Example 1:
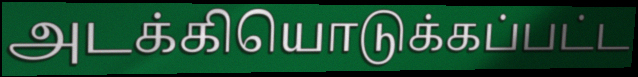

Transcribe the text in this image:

அடக்கியொடுக்கப்பட்ட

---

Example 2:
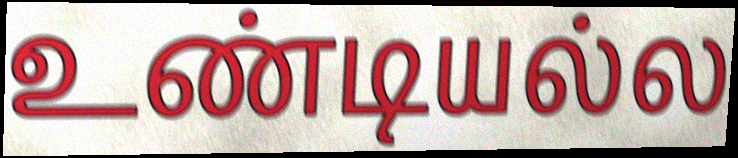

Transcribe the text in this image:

உண்டியல்ல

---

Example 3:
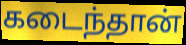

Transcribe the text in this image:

கடைந்தான்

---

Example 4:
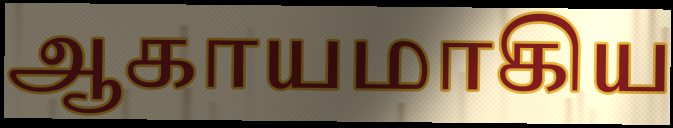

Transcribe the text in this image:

ஆகாயமாகிய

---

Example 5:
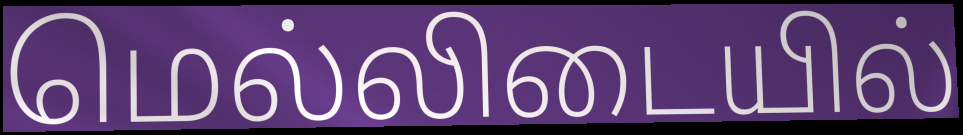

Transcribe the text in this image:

மெல்லிடையில்